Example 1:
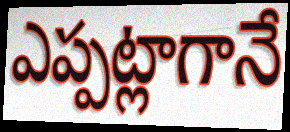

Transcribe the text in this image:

ఎప్పట్లాగానే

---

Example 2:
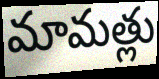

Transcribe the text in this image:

మామత్లు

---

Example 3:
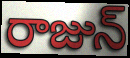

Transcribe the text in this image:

రాజున్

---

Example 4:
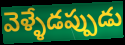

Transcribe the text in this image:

వెళ్ళేడప్పుడు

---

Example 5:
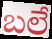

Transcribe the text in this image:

బలే